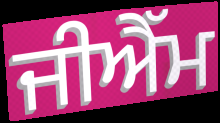
ਜੀਐੱਮ